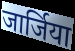
जार्जिया